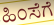
ಹಿಂಸೆಗೆ